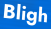
Bligh